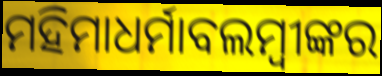
ମହିମାଧର୍ମାବଲମ୍ବୀଙ୍କର